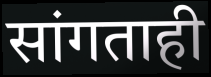
सांगताही